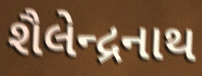
શૈલેન્દ્રનાથ